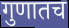
गुणातच